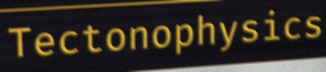
Tectonophysics